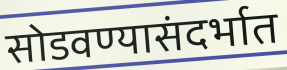
सोडवण्यासंदर्भात